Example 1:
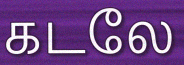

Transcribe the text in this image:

கடலே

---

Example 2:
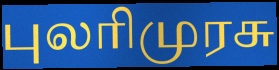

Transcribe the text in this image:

புலரிமுரசு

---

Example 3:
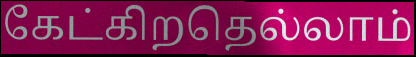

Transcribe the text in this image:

கேட்கிறதெல்லாம்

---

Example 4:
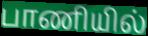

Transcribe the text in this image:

பாணியில்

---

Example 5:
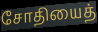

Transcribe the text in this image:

சோதியைத்